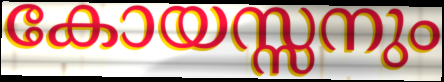
കോയസ്സനും